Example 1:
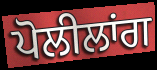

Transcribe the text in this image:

ਪੋਲੀਲਾਂਗ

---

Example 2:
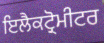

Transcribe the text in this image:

ਇਲੈਕਟ੍ਰੋਮੀਟਰ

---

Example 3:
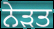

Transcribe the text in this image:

ਨੇੜਤ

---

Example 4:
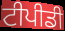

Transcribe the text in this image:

ਟੀਪੀਡੀ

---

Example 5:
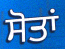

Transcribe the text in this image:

ਸੋਤਾਂ